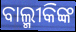
ବାଲ୍ମୀକିଙ୍କ